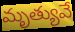
మృత్యువే